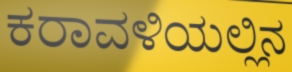
ಕರಾವಳಿಯಲ್ಲಿನ